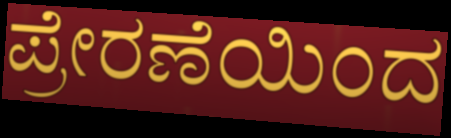
ಪ್ರೇರಣೆಯಿಂದ